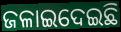
ଜଳାଇଦେଇଛି